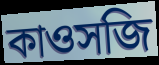
কাওসজি